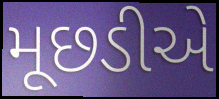
મૂછડીએ